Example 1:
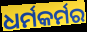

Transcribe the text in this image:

ଧର୍ମକର୍ମର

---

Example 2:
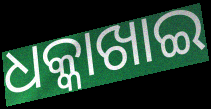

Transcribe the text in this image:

ଧକ୍କାଖାଇ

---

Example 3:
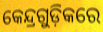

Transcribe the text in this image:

କେନ୍ଦ୍ରଗୁଡ଼ିକରେ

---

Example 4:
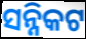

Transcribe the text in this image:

ସନ୍ନିକଟ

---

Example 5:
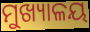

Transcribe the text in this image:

ମୁଖ୍ୟାଳୟ